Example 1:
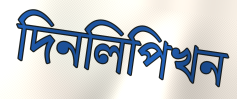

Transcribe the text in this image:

দিনলিপিখন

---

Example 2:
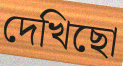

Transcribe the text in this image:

দেখিছো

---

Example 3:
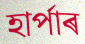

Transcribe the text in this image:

হাৰ্পাৰ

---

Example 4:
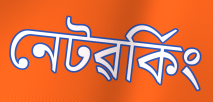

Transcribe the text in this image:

নেটৱৰ্কিং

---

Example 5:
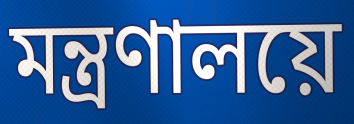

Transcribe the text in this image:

মন্ত্ৰণালয়ে